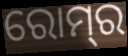
ରୋମ୍‌ର